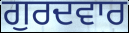
ਗੁਰਦਵਾਰ